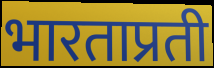
भारताप्रती